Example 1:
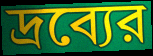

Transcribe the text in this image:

দ্রব্যের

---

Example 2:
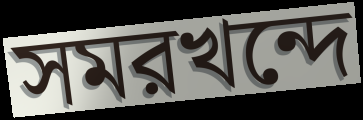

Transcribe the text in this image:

সমরখন্দে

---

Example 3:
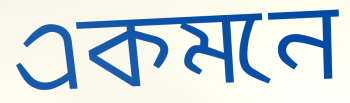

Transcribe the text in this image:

একমনে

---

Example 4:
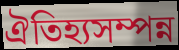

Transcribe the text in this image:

ঐতিহ্যসম্পন্ন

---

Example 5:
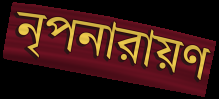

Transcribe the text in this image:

নৃপনারায়ণ